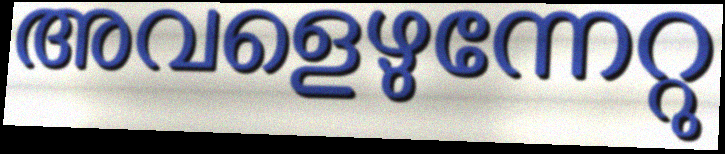
അവളെഴുന്നേറ്റു